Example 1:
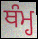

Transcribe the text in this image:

ਥੰਮ੍ਹ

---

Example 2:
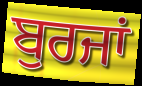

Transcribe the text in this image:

ਬੁਰਜਾਂ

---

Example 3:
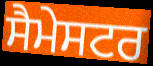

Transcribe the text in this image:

ਸੈਮੇਸਟਰ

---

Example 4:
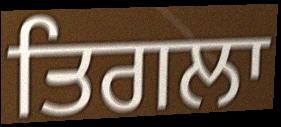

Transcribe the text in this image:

ਤਿਗਲਾ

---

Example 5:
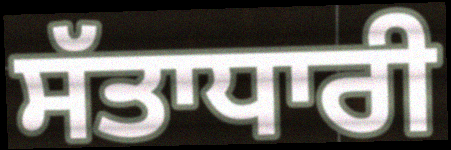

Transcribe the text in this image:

ਸੱਤਾਧਾਰੀ